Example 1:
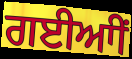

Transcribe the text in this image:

ਗਈਆੀਂ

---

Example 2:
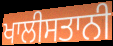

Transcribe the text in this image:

ਖਾਲੀਸਤਾਨੀ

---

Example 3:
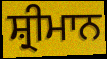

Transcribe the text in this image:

ਸ਼੍ਰੀਮਾਨ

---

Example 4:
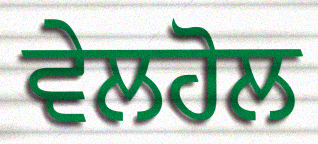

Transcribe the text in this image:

ਵੇਲਹੋਲ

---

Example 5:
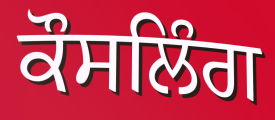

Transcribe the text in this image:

ਕੌਸਲਿੰਗ